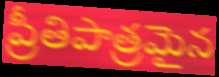
ప్రీతిపాత్రమైన